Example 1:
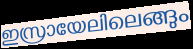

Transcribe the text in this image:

ഇസ്രായേലിലെങ്ങും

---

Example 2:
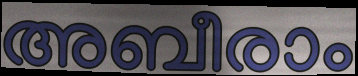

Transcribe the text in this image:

അബീരാം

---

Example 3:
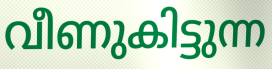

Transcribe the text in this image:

വീണുകിട്ടുന്ന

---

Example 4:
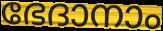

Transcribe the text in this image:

ഭേദാനാം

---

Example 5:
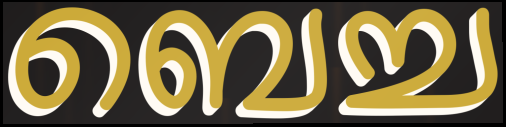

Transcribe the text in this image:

ബെച്ച